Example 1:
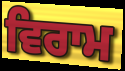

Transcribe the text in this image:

ਵਿਰਾਮ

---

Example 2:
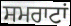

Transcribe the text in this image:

ਸਮਰਾਟਾਂ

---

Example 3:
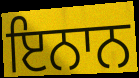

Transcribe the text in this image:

ਇਨਾਨ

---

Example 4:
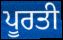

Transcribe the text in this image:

ਪੂਰਤੀ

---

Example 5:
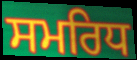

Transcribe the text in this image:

ਸਮਰਿਧ